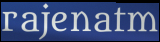
rajenatm